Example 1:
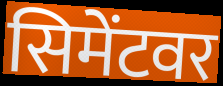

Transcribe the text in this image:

सिमेंटवर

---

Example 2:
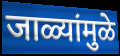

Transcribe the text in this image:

जाळ्यांमुळे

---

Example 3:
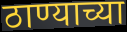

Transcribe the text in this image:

ठाण्याच्या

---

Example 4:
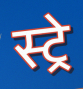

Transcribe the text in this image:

स्ट्रे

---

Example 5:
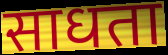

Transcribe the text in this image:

साधता